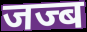
जज्ब